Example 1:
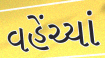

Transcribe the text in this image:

વહેંચ્યાં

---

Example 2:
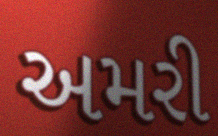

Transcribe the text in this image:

અમરી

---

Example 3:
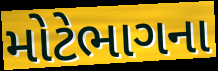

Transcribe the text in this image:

મોટેભાગના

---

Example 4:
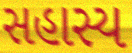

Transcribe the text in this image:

સહાસ્ય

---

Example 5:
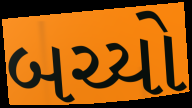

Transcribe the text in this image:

બચ્યો